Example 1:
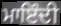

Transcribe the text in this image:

ਮਾਇੰਦੀ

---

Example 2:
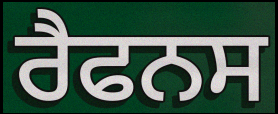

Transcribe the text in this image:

ਰੈਫਨਸ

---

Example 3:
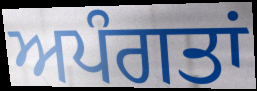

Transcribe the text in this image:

ਅਪੰਗਤਾਂ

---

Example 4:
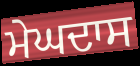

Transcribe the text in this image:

ਮੇਘਦਾਸ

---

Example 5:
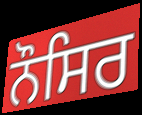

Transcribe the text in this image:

ਨੌਸਿਰ